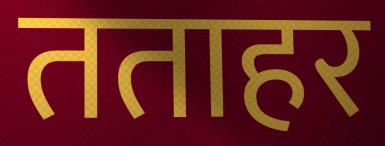
तताहर